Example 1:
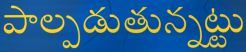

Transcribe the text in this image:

పాల్పడుతున్నట్టు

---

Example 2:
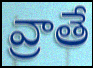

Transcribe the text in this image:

వ్రాతే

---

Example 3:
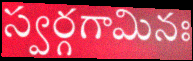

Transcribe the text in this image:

స్వర్గగామినః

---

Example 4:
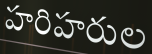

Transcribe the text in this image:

హరిహరుల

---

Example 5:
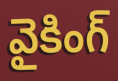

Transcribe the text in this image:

వైకింగ్